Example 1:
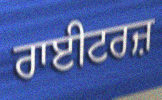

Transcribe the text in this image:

ਰਾਈਟਰਜ਼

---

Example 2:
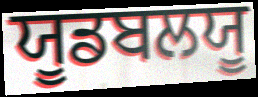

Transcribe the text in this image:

ਯੂਡਬਲਯੂ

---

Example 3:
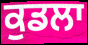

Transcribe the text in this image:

ਕੁਡਲਾ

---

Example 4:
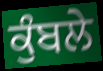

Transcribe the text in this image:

ਕੁੰਬਲੇ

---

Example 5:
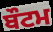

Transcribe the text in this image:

ਬੌਟਮ